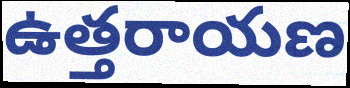
ఉత్తరాయణ